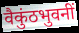
वैकुंठभुवनीं